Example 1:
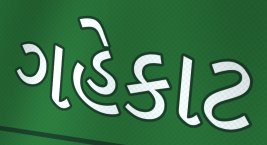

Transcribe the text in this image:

ગહેકાટ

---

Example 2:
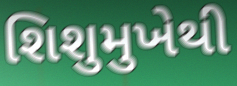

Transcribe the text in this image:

શિશુમુખેથી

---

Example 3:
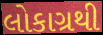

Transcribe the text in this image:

લોકાગ્રથી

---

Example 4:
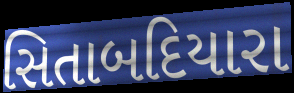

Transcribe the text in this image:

સિતાબદિયારા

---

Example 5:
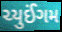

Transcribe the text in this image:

ચ્યુઈંગમ